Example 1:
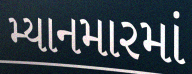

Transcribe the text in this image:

મ્યાનમારમાં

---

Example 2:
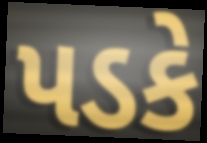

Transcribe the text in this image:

પડકે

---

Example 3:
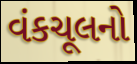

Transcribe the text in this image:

વંકચૂલનો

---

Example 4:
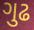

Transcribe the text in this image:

ગુઢ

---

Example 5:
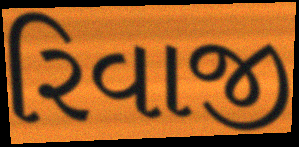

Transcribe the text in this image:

રિવાજી